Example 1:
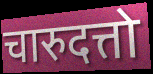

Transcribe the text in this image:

चारुदत्तो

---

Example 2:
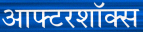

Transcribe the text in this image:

आफ्टरशॉक्स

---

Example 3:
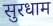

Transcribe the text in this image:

सुरधाम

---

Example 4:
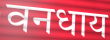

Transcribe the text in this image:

वनधाय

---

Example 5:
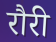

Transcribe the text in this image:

रौरी